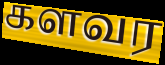
களவர